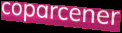
coparcener